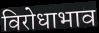
विरोधाभाव